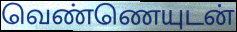
வெண்ணெயுடன்